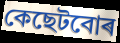
কেছেটবোৰ